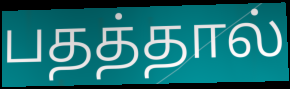
பதத்தால்